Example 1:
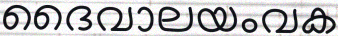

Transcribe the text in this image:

ദൈവാലയംവക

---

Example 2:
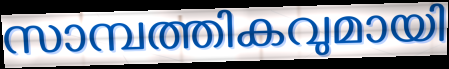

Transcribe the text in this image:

സാമ്പത്തികവുമായി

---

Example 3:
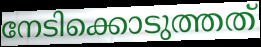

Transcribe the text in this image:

നേടിക്കൊടുത്തത്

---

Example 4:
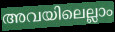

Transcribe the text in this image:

അവയിലെല്ലാം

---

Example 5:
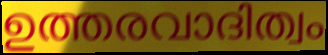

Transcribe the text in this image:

ഉത്തരവാദിത്വം